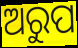
ଅରୁପ